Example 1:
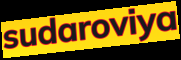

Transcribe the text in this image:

sudaroviya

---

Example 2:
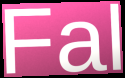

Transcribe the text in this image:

Fal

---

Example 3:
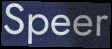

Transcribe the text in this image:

Speer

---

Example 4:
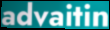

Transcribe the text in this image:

advaitin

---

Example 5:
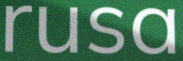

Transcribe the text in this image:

rusa